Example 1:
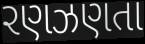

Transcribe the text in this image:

રણઝણતા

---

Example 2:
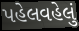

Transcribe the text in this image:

પહેલવહેલું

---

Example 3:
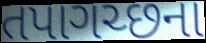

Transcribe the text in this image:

તપાગચ્છના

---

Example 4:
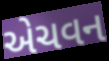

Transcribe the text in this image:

એચવન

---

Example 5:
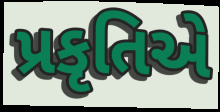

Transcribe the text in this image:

પ્રકૃતિએ